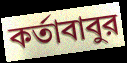
কর্তাবাবুর